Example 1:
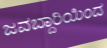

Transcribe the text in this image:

ಜವಬ್ದಾರಿಯಿಂದ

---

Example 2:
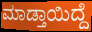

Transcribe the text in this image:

ಮಾಡ್ತಾಯಿದ್ದೆ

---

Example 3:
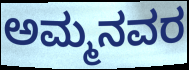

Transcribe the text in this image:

ಅಮ್ಮನವರ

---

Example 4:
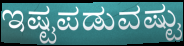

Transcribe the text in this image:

ಇಷ್ಟಪಡುವಷ್ಟು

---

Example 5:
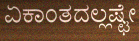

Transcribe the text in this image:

ಏಕಾಂತದಲ್ಲಷ್ಟೇ